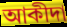
আকীদা